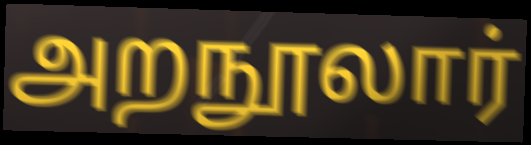
அறநூலார்